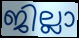
ജില്ലാ